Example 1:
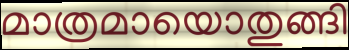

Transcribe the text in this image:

മാത്രമായൊതുങ്ങി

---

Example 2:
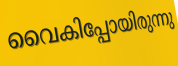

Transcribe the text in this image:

വൈകിപ്പോയിരുന്നു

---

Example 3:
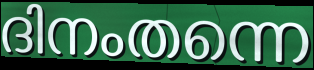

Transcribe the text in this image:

ദിനംതന്നെ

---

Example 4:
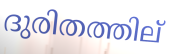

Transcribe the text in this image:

ദുരിതത്തില്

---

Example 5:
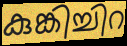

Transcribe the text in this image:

കുങ്കിച്ചിറ